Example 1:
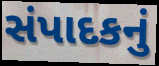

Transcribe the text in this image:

સંપાદકનું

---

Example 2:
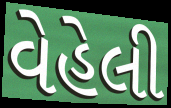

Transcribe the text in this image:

વેહેલી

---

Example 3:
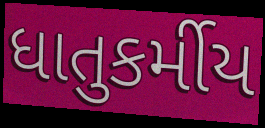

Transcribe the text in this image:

ધાતુકર્મીય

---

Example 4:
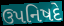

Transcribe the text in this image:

ઉપનિષદે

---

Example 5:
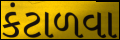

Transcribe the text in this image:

કંટાળવા